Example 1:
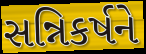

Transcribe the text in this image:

સન્નિકર્ષને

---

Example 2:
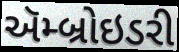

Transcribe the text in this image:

ઍમ્બ્રોઇડરી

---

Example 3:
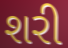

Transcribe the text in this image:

શરી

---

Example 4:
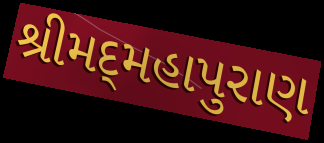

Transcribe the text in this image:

શ્રીમદ્‌મહાપુરાણ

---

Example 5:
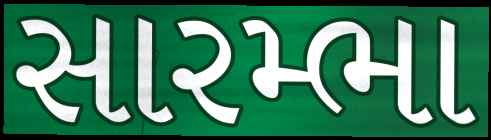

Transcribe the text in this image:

સારમ્ભા